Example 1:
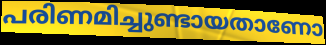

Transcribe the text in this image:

പരിണമിച്ചുണ്ടായതാണോ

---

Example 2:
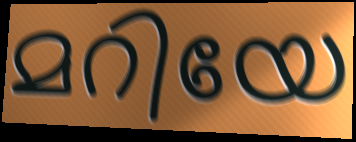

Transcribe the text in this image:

മറിയേ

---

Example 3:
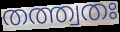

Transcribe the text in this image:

തത്ത്വതഃ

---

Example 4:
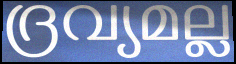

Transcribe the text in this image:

ദ്രവ്യമല്ല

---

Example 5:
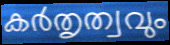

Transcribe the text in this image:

കർതൃത്വവും